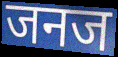
जनज